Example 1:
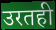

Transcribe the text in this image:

उरतही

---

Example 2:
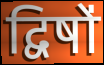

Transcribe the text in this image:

द्विषो॑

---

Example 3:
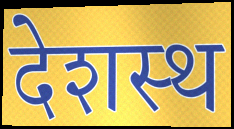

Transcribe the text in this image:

देशस्थ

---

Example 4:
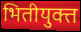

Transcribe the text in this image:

भितीयुक्त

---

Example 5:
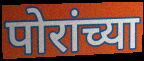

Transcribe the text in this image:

पोरांच्या